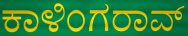
ಕಾಳಿಂಗರಾವ್